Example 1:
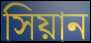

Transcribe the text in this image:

সিয়ান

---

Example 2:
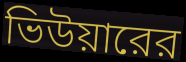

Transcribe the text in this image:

ভিউয়ারের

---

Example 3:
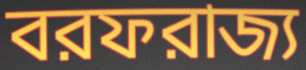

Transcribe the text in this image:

বরফরাজ্য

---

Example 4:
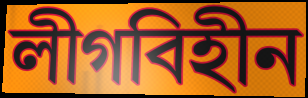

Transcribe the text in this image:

লীগবিহীন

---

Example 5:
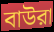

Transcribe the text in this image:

বাউরা